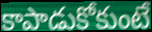
కాపాడుకోకుంటే